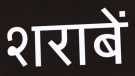
शराबें